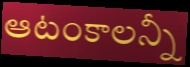
ఆటంకాలన్నీ